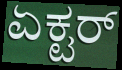
ಏಕ್ಟರ್